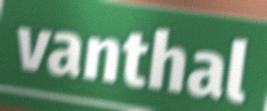
vanthal